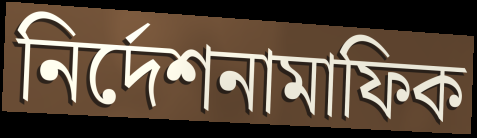
নির্দেশনামাফিক